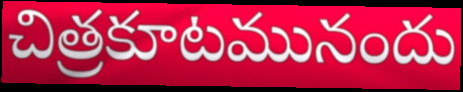
చిత్రకూటమునందు